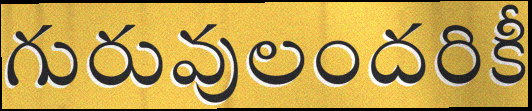
గురువులందరికీ